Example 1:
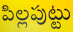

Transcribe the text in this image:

పిల్లపుట్టు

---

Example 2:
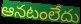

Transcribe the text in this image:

ఆనటంలేదు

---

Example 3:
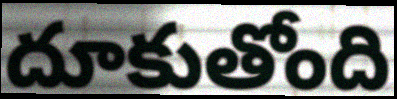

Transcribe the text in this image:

దూకుతోంది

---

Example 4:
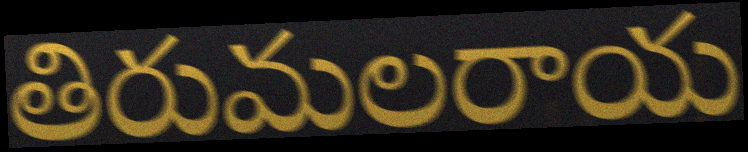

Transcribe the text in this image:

తిరుమలరాయ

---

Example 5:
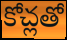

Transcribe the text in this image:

కోచ్లతో